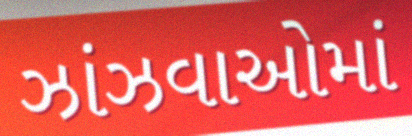
ઝાંઝવાઓમાં